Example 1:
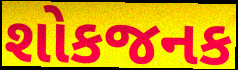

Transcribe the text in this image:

શોકજનક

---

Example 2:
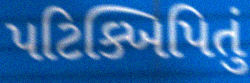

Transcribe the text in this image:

પટિક્ખિપિતું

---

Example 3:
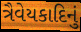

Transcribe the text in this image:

ત્રૈવેયકાદિનું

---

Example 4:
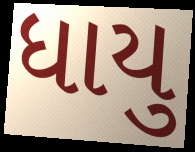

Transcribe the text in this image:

ધાયુ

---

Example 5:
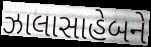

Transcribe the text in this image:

ઝાલાસાહેબને